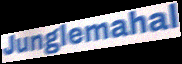
Junglemahal